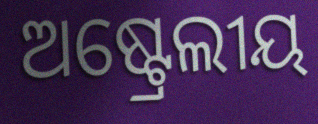
ଅଷ୍ଟ୍ରେଲୀୟ